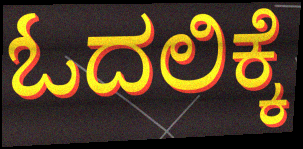
ಓದಲಿಕ್ಕೆ